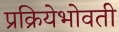
प्रक्रियेभोवती